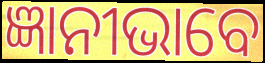
ଜ୍ଞାନୀଭାବେ